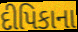
દીપિકાના